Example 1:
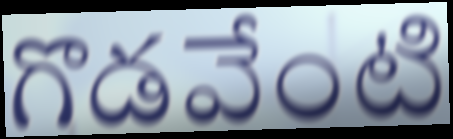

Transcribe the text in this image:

గొడవేంటి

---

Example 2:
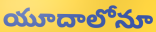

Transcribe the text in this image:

యూదాలోనూ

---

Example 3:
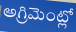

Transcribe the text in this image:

అగ్రిమెంట్లో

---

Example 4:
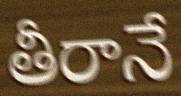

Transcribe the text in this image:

తీరానే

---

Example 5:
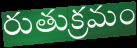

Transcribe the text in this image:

రుతుక్రమం